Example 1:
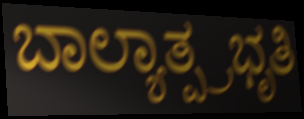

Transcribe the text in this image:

ಬಾಲ್ಯಾತ್ಪ್ರಭೃತಿ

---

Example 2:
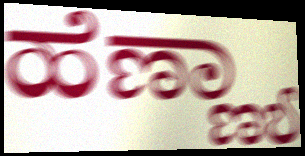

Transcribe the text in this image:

ಹೆಣ್ಣ್ಯಾ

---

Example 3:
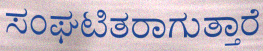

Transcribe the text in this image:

ಸಂಘಟಿತರಾಗುತ್ತಾರೆ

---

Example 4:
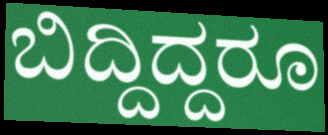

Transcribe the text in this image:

ಬಿದ್ದಿದ್ದರೂ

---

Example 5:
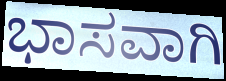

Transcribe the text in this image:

ಭಾಸವಾಗಿ